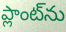
ప్లాంట్‌ను